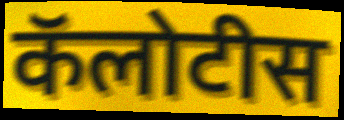
कॅलोटीस